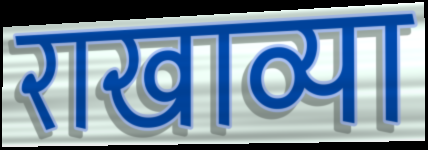
राखाव्या